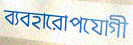
ব্যবহারোপযোগী